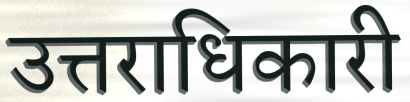
उत्तराधिकारी